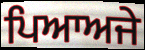
ਪਿਆਅਜੇ